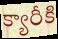
క్యారీకి